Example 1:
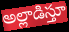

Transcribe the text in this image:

అల్లాడిస్తూ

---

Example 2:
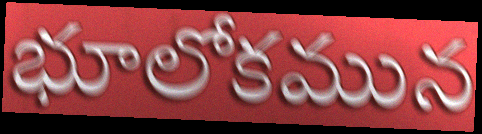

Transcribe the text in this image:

భూలోకమున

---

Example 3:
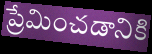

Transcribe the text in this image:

ప్రేమించడానికి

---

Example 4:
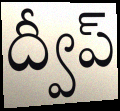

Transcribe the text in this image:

ద్వీప్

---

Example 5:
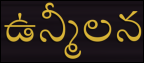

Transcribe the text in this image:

ఉన్మీలన